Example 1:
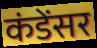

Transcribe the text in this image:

कंडेंसर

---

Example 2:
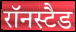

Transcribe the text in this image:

रॉनस्टैड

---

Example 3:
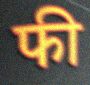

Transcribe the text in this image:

फी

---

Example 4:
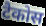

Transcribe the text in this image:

टैकोस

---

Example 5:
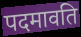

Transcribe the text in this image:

पदमावति